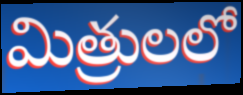
మిత్రులలో